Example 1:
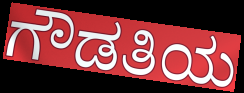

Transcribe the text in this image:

ಗೌಡತಿಯ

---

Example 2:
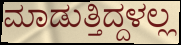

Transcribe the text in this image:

ಮಾಡುತ್ತಿದ್ದಳಲ್ಲ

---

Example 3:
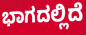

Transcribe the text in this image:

ಭಾಗದಲ್ಲಿದೆ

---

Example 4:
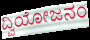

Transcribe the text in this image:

ದ್ವಿಯೋಜನಂ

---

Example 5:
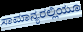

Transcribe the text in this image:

ಸಾಮಾನ್ಯರಲ್ಲಿಯೂ